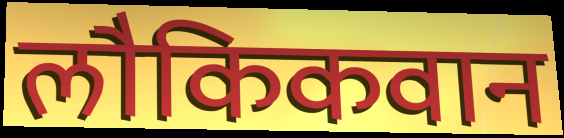
लौकिकवान